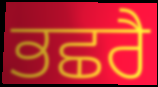
ਭਛਰੈ